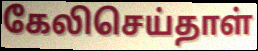
கேலிசெய்தாள்